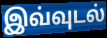
இவ்வுடல்